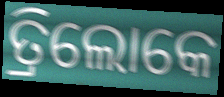
ତ୍ରିଲୋକେ